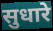
सुधारे